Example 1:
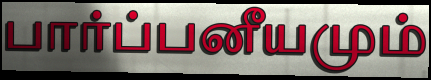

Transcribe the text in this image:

பார்ப்பனீயமும்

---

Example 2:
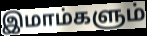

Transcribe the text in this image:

இமாம்களும்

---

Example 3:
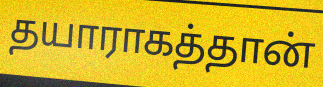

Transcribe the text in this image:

தயாராகத்தான்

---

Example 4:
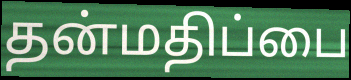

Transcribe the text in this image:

தன்மதிப்பை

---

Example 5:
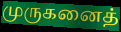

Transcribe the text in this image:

முருகனைத்